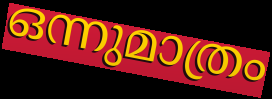
ഒന്നുമാത്രം